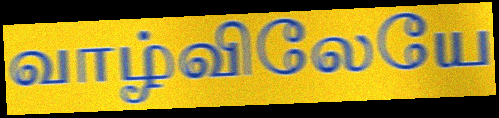
வாழ்விலேயே